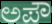
ಅಪೌ